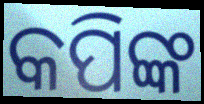
କପିଙ୍କ